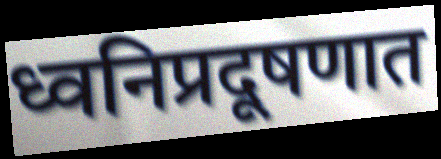
ध्वनिप्रदूषणात